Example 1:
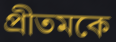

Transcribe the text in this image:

প্রীতমকে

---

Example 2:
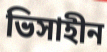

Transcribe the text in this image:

ভিসাহীন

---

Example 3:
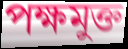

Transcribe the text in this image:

পক্ষমুক্ত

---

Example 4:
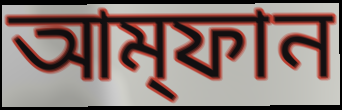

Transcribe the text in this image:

আম্‌ফান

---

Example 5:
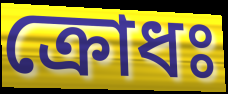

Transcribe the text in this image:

ক্রোধঃ